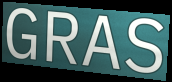
GRAS